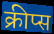
क्रीप्स